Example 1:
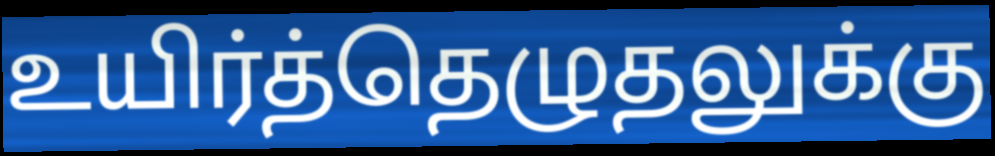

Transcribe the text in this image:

உயிர்த்தெழுதலுக்கு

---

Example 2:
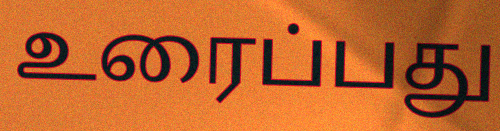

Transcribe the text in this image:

உரைப்பது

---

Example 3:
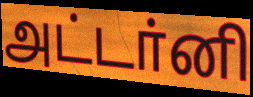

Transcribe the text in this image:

அட்டர்னி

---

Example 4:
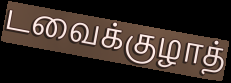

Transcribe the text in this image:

டவைக்குழாத்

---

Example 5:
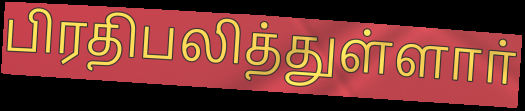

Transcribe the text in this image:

பிரதிபலித்துள்ளார்